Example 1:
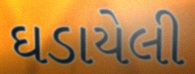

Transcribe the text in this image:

ઘડાયેલી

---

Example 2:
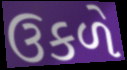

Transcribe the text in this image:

ઉકળે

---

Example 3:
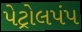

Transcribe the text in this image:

પેટ્રોલપંપ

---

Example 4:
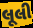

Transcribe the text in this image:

લૂલી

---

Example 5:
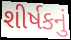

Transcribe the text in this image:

શીર્ષકનું